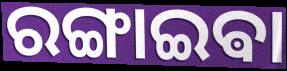
ରଙ୍ଗାଇଵା